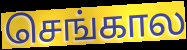
செங்கால